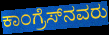
ಕಾಂಗ್ರೆಸ್‌ನವರು